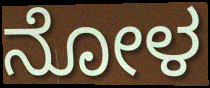
ನೋಳ